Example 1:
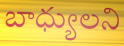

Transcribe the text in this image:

బాధ్యులని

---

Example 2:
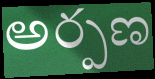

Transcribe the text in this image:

అర్పణ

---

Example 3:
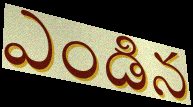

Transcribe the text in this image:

ఎండిన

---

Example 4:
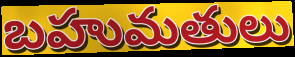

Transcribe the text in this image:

బహుమతులు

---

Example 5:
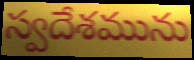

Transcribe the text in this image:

స్వదేశమును